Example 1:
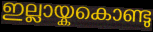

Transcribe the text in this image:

ഇല്ലായ്കകൊണ്ടു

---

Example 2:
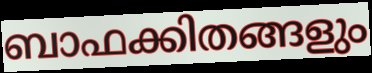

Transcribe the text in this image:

ബാഫക്കിതങ്ങളും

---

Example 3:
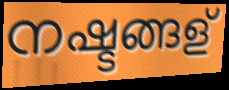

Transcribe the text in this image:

നഷ്ടങ്ങള്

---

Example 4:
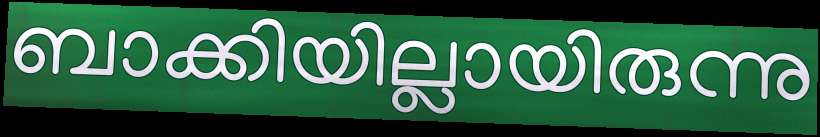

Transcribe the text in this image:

ബാക്കിയില്ലായിരുന്നു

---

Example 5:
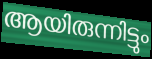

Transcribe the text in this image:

ആയിരുന്നിട്ടും